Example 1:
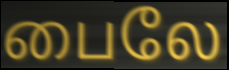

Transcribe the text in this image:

பைலே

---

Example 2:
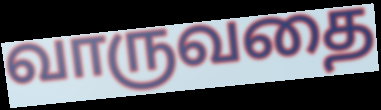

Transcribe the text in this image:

வாருவதை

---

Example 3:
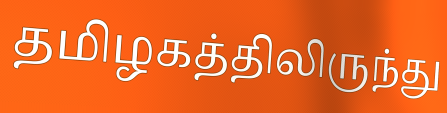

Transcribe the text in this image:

தமிழகத்திலிருந்து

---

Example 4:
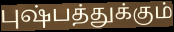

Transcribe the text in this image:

புஷ்பத்துக்கும்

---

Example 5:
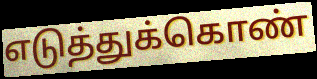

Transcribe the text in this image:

எடுத்துக்கொண்